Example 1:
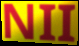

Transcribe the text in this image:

NII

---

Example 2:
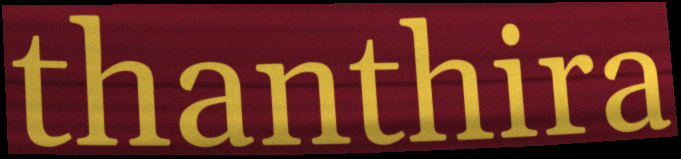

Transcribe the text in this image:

thanthira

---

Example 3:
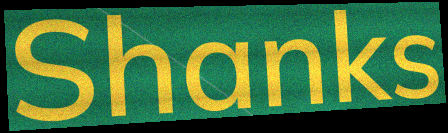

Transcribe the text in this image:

Shanks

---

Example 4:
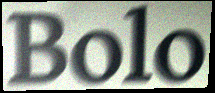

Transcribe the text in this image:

Bolo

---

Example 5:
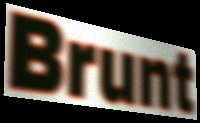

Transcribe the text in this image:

Brunt